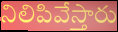
నిలిపివేస్తారు